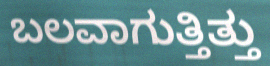
ಬಲವಾಗುತ್ತಿತ್ತು